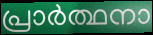
പ്രാർത്ഥനാ